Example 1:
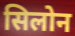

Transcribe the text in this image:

सिलोन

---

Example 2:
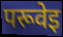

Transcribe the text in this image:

परूवेइ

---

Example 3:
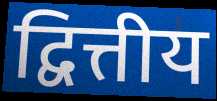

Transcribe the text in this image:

द्वित्तीय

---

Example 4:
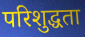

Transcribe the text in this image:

परिशुद्धता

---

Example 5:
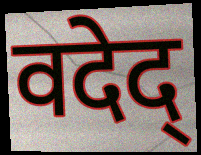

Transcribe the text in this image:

वदेद्